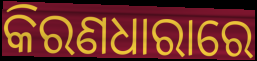
କିରଣଧାରାରେ